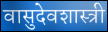
वासुदेवशास्त्री